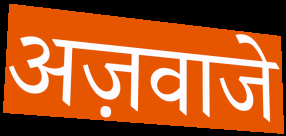
अज़वाजे